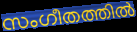
സംഗീതത്തിൽ